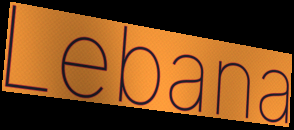
Lebana